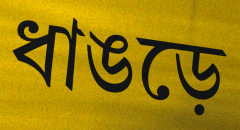
ধাঙড়ে